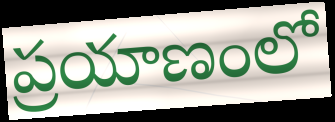
ప్రయాణంలో